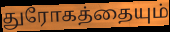
துரோகத்தையும்